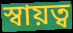
স্বায়ত্ব